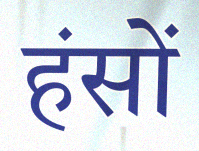
हंसों